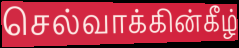
செல்வாக்கின்கீழ்